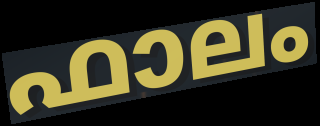
ഫാലം